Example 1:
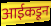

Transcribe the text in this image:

आईकडून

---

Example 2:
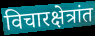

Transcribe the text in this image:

विचारक्षेत्रांत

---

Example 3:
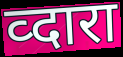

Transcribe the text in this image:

व्दारा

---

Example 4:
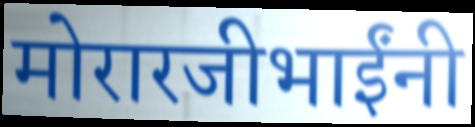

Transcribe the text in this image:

मोरारजीभाईंनी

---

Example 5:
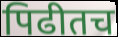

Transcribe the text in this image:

पिढीतच